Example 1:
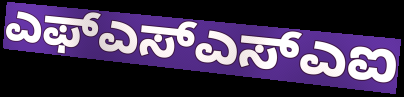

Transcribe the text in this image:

ಎಫ್ಎಸ್ಎಸ್ಎಐ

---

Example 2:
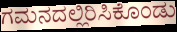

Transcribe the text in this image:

ಗಮನದಲ್ಲಿರಿಸಿಕೊಂಡು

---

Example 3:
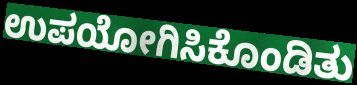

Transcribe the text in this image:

ಉಪಯೋಗಿಸಿಕೊಂಡಿತು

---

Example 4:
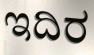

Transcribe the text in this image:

ಇದಿರ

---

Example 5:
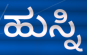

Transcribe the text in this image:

ಹುಸ್ನಿ